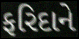
ફરિદાને